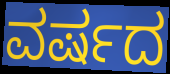
ವರ್ಷದ